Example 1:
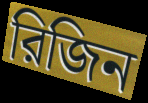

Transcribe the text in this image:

রিজিন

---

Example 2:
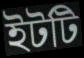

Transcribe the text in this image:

ইটটি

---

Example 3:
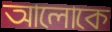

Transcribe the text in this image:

আলোকে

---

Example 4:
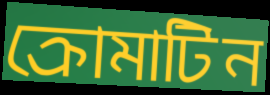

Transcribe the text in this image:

ক্রোমাটিন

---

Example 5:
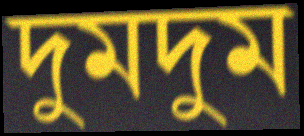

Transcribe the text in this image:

দুমদুম